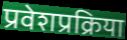
प्रवेशप्रक्रिया